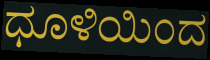
ಧೂಳಿಯಿಂದ